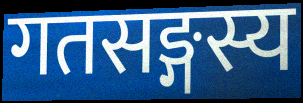
गतसङ्गस्य